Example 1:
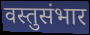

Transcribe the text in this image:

वस्तुसंभार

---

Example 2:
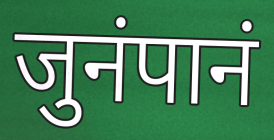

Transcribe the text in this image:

जुनंपानं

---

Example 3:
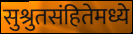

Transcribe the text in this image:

सुश्रुतसंहितेमध्ये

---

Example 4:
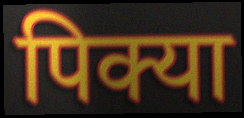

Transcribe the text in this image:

पिक्या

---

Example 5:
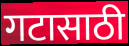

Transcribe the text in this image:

गटासाठी